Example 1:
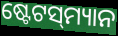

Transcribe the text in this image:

ଷ୍ଟେଟସ୍‌ମ୍ୟାନ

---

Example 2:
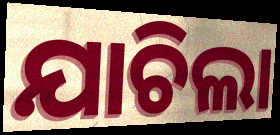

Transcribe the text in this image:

ଯାଚିଲା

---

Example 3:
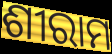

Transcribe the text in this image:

ଶୀରାମ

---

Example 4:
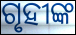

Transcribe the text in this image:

ଗୃହୀଙ୍କ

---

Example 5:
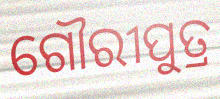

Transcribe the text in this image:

ଗୌରୀପୁତ୍ର